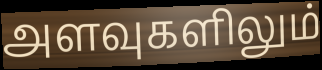
அளவுகளிலும்